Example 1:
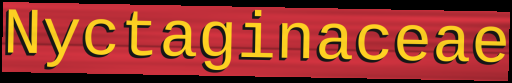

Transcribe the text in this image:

Nyctaginaceae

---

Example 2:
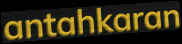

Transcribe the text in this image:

antahkaran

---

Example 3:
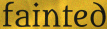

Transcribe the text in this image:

fainted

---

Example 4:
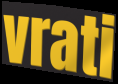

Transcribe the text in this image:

vrati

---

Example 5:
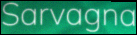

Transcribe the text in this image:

Sarvagna